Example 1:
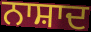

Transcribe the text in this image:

ਨਾਸ਼ਾਦ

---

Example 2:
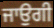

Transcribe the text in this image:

ਜਾਉਗੀ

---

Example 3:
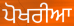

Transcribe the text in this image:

ਪੋਖਰੀਆ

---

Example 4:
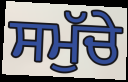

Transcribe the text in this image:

ਸਮੁੱਚੇ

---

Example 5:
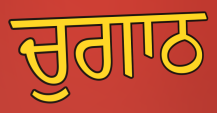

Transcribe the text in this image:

ਚੁਗਾਠ